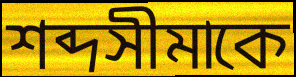
শব্দসীমাকে